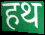
हथ